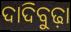
ଦାଦିବୁଢ଼ା